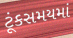
ટૂંકસમયમાં